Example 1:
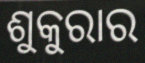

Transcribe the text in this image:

ଶୁକୁରାର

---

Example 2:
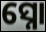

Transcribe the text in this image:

ସ୍ନୋ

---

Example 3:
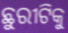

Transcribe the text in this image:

ଛୁରୀଟିକୁ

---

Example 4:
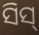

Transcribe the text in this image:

ସିସ୍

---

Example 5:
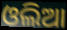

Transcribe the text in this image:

ଓଲିଆ